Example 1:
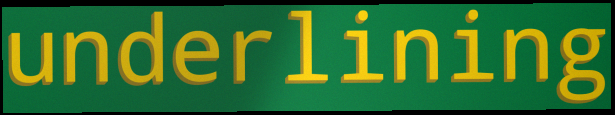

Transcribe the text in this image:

underlining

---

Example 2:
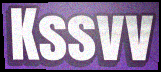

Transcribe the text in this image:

Kssvv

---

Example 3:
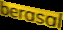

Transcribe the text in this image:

berasal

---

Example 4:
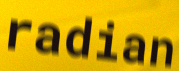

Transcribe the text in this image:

radian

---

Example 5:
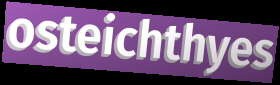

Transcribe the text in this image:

osteichthyes